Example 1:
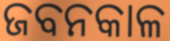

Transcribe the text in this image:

ଜବନକାଳ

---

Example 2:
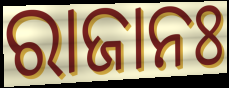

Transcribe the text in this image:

ରାଜାନଃ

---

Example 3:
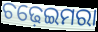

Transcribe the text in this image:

ଚଢ଼େଇମରା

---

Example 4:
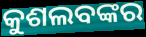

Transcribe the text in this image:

କୁଶଲବଙ୍କର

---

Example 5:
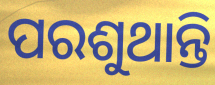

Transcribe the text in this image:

ପରଶୁଥାନ୍ତି